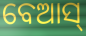
ବେଆସ୍